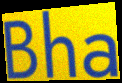
Bha